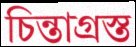
চিন্তাগ্রস্ত